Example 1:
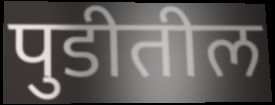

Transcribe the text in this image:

पुडीतील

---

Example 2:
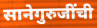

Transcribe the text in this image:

सानेगुरुजींची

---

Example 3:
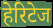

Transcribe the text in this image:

हेरिटेज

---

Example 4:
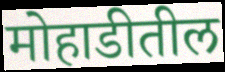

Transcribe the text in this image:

मोहाडीतील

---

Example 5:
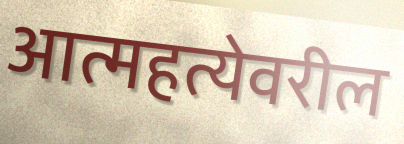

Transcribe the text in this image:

आत्महत्येवरील